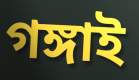
গঙ্গাই